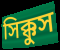
সিক্কুস